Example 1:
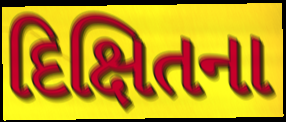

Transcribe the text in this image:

દિક્ષિતના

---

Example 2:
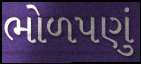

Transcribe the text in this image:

ભોળપણું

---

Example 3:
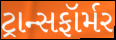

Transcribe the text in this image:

ટ્રાન્સફૉર્મર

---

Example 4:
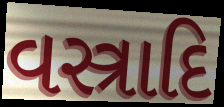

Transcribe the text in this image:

વસ્ત્રાદિ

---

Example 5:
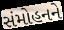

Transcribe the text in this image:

સંમોહનને